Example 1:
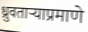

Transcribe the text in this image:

ध्रुवताऱ्याप्रमाणे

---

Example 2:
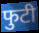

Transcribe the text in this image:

फुटी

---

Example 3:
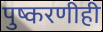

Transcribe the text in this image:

पुष्करणीही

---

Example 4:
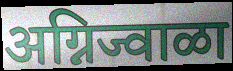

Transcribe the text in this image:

अग्निज्वाळा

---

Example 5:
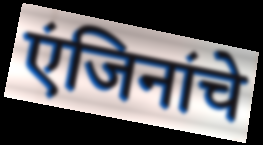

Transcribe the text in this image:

एंजिनांचे